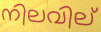
നിലവില്